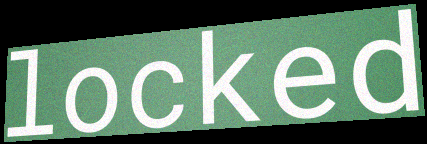
locked